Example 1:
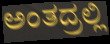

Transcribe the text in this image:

ಅಂತದ್ರಲ್ಲಿ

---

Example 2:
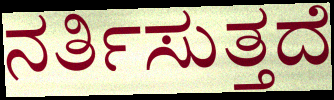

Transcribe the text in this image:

ನರ್ತಿಸುತ್ತದೆ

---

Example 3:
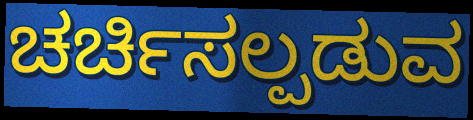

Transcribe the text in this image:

ಚರ್ಚಿಸಲ್ಪಡುವ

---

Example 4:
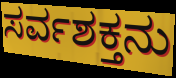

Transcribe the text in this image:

ಸರ್ವಶಕ್ತನು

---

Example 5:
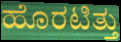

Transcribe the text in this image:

ಹೊರಟಿತ್ತು